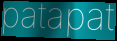
patapat